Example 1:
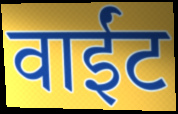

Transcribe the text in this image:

वाईंट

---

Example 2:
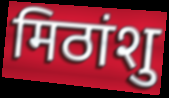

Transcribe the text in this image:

मिठांशु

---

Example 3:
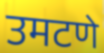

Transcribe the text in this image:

उमटणे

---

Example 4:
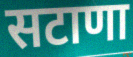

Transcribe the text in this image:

सटाणा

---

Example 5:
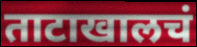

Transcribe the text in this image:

ताटाखालचं